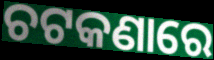
ଚଟକଣାରେ